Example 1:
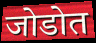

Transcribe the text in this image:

जोडोत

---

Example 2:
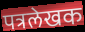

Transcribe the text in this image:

पत्रलेखक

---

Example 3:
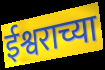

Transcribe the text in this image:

ईश्वराच्या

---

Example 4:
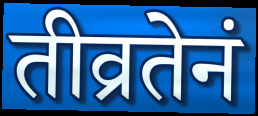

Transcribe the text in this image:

तीव्रतेनं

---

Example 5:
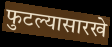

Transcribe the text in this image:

फुटल्यासारखे